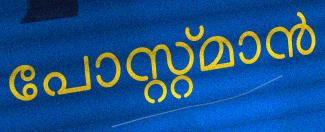
പോസ്റ്റ്മാൻ